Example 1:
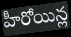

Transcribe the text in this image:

హీరోయిన్ల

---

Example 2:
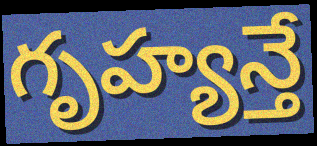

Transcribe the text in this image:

గృహ్యన్తే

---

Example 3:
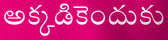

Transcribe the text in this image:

అక్కడికెందుకు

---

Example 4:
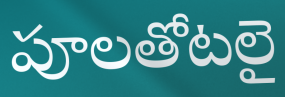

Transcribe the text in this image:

పూలతోటలై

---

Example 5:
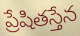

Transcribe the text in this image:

ప్రేషితస్తేన